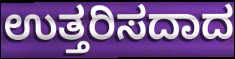
ಉತ್ತರಿಸದಾದ